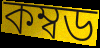
কম্বড